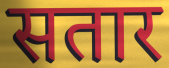
सतार